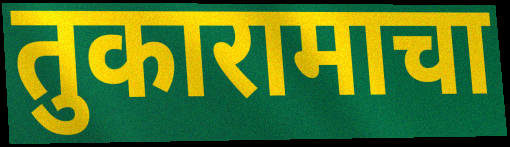
तुकारामाचा